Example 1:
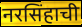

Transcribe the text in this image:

नरसिंहाची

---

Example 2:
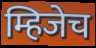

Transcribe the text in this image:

म्हिजेच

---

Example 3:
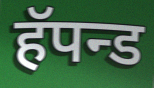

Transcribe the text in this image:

हॅपन्ड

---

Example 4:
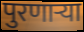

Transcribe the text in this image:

पुरणाऱ्या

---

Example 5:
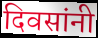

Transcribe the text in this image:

दिवसांनी